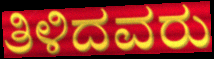
ತಿಳಿದವರು